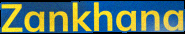
Zankhana